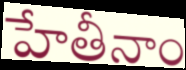
హేతీనాం